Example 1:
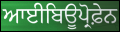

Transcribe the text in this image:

ਆਈਬਿਊਪ੍ਰੋਫ਼ੇਨ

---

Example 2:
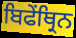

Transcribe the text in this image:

ਬਿਫੇਂਥ੍ਰਿਨ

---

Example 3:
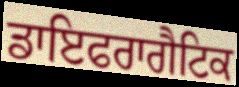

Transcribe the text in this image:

ਡਾਇਫਰਾਗੈਟਿਕ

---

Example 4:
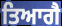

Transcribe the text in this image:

ਤਿਆਗੈ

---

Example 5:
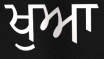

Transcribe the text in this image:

ਖੁਆ